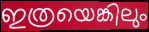
ഇത്രയെങ്കിലും